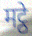
मट्ठे